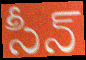
సీన్